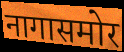
नागासमोर